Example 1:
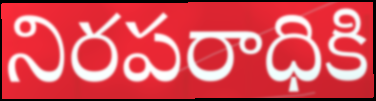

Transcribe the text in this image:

నిరపరాధికి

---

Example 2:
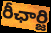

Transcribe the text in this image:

రీఛార్జి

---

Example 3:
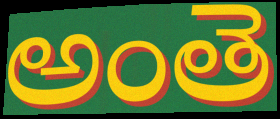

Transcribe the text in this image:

అంతె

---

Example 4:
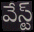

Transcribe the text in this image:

వేస్ట్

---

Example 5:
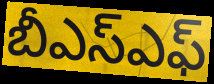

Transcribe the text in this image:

బీఎస్ఎఫ్